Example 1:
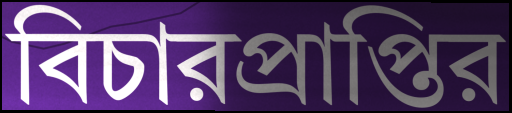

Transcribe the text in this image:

বিচারপ্রাপ্তির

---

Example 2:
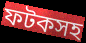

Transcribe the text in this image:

ফটকসহ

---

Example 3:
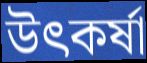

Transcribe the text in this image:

উৎকর্ষা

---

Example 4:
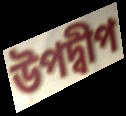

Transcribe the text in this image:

উপদ্বীপ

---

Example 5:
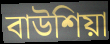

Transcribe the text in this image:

বাউশিয়া